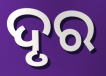
ଦୃର